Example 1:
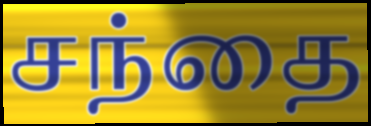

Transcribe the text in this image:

சந்தை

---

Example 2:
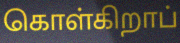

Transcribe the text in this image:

கொள்கிறாப்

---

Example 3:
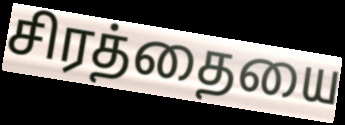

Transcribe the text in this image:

சிரத்தையை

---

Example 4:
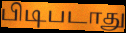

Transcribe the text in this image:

பிடிபடாது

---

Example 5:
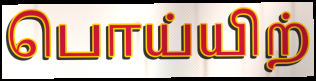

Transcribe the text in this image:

பொய்யிற்